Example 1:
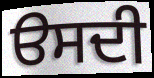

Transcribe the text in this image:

ੳਸਦੀ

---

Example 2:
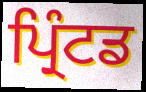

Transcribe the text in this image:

ਪ੍ਰਿੰਟਡ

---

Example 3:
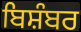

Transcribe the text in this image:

ਬਿਸ਼ੰਬਰ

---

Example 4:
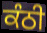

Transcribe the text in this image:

ਕੰਠੀ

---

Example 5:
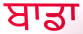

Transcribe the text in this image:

ਬਾਡਾ